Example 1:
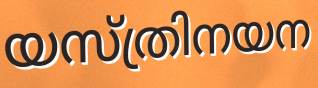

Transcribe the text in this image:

യസ്ത്രിനയന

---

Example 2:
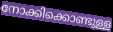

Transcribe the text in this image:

നോക്കിക്കൊണ്ടുള്ള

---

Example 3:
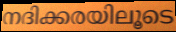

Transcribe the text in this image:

നദിക്കരയിലൂടെ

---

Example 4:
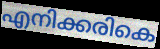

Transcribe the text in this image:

എനിക്കരികെ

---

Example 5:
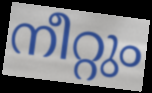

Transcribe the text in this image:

നീറ്റും